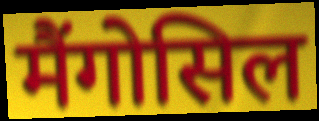
मैंगोसिल